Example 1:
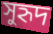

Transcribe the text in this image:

সুহৃদ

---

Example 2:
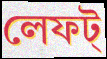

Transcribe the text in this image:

লেফট্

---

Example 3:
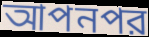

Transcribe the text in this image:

আপনপর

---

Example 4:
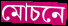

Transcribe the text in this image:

মোচনে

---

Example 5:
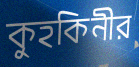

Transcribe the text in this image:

কুহকিনীর